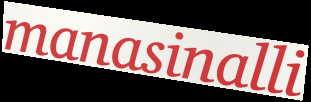
manasinalli